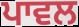
ਪਾਵਲ